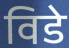
विडे